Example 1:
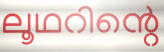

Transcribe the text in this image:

ലൂഥറിന്റെ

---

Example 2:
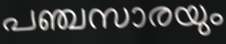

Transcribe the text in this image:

പഞ്ചസാരയും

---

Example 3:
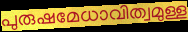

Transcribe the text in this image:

പുരുഷമേധാവിത്വമുള്ള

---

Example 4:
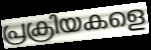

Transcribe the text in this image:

പ്രക്രിയകളെ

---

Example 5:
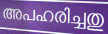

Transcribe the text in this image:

അപഹരിച്ചതു